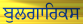
ਬੁਲਗਾਰਿਕਸ